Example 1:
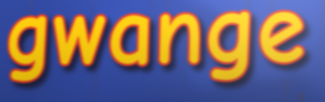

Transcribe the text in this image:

gwange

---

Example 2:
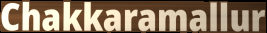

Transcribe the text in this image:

Chakkaramallur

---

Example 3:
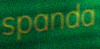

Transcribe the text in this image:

spanda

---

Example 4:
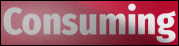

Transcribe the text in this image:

Consuming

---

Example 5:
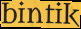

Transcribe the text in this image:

bintik